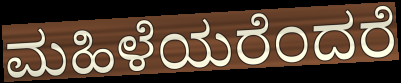
ಮಹಿಳೆಯರೆಂದರೆ